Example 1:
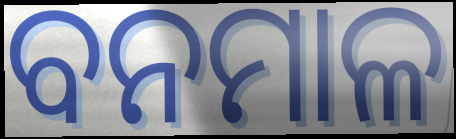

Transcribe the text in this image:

ବନମାଳ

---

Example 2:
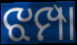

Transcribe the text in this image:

ଝମ୍ପା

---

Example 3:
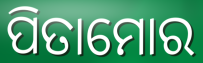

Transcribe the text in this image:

ପିତାମୋର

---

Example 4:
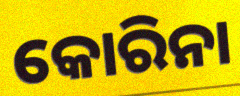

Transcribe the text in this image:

କୋରିନା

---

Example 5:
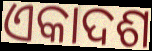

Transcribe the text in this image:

ଏକାଦଶ